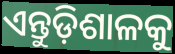
ଏନ୍ତୁଡ଼ିଶାଳକୁ